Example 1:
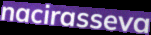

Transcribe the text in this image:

nacirasseva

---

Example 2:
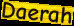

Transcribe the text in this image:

Daerah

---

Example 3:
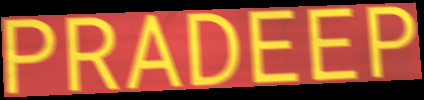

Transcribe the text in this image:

PRADEEP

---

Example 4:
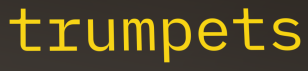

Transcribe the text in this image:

trumpets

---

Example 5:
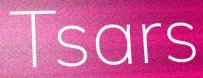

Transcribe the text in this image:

Tsars